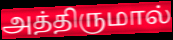
அத்திருமால்